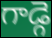
గాడ్గె